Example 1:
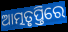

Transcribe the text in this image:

ଆତ୍ମତୃପ୍ତିରେ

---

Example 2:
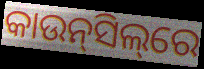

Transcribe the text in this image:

କାଉନ୍‌ସିଲ୍‌ରେ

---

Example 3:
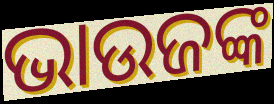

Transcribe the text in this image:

ଭାଉଜଙ୍କ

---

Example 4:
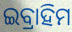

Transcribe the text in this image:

ଇବ୍ରାହିମ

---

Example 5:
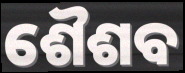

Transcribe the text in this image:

ଶୈଶବ